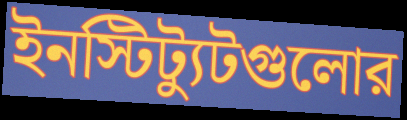
ইনস্টিট্যুটগুলোর